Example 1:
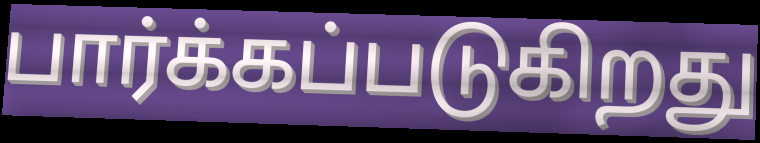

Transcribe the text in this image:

பார்க்கப்படுகிறது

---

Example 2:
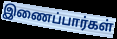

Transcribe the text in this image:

இணைப்பார்கள்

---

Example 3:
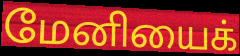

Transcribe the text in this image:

மேனியைக்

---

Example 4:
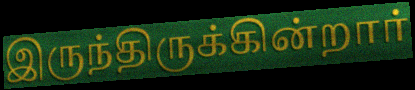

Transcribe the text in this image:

இருந்திருக்கின்றார்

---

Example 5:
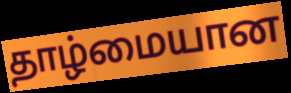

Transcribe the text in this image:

தாழ்மையான